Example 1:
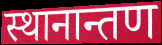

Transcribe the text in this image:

स्थानान्तण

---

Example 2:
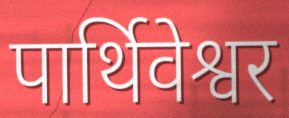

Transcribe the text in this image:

पार्थिवेश्वर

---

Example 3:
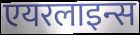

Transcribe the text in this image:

एयरलाइन्स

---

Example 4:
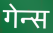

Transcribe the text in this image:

गेन्स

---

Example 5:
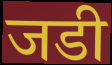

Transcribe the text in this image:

जडी